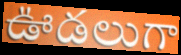
ఊడలుగా